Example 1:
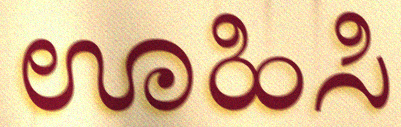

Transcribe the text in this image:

ಊಹಿಸಿ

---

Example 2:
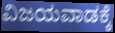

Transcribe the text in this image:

ವಿಜಯವಾಡಕ್ಕೆ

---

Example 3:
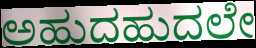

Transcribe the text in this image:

ಅಹುದಹುದಲೇ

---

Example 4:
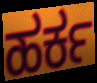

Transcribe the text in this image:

ಹರ್ಕ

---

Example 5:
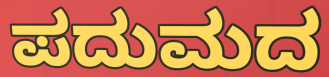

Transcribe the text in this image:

ಪದುಮದ